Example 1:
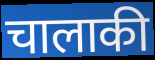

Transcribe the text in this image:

चालाकी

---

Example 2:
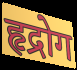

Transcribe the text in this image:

हृद्रोग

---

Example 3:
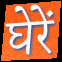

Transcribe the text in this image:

घेरें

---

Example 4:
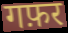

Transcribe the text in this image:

गफ़र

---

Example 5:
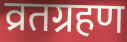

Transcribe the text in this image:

व्रतग्रहण